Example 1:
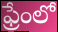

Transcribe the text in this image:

ఫ్రేంలో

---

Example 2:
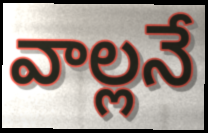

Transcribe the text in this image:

వాల్లనే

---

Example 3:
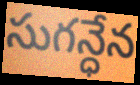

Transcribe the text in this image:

సుగన్ధేన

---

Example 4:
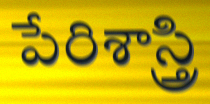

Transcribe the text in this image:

పేరిశాస్త్రి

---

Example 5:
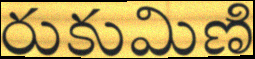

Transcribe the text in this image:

రుకుమిణి